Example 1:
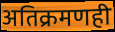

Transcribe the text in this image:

अतिक्रमणही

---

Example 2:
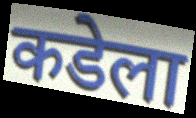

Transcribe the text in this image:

कडेला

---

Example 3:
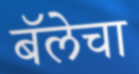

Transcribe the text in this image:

बॅलेचा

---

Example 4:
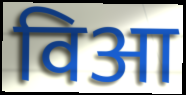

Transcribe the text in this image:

विआ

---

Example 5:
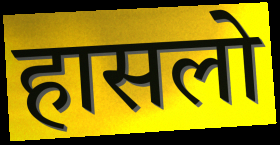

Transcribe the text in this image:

हासलो